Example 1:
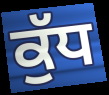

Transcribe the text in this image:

ਕੁੱਧ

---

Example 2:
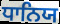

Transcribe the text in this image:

ਧਾਨਿਯ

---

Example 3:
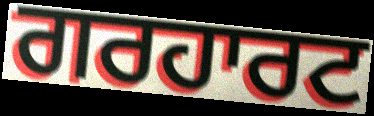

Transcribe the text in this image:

ਗਰਹਾਰਟ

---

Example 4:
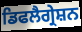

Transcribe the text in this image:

ਡਿਫਲੈਗ੍ਰੇਸ਼ਨ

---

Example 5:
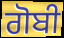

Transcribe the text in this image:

ਗੋਬੀ